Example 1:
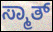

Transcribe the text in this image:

ಸ್ಮಾತ್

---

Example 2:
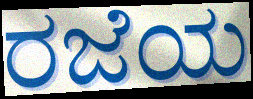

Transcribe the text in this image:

ರಜೆಯ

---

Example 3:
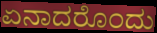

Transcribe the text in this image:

ಏನಾದರೊಂದು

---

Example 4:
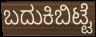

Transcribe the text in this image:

ಬದುಕಿಬಿಟ್ಟೆ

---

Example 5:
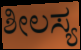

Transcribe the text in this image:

ಶೀಲಸ್ಯ